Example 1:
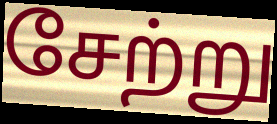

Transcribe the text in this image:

சேற்று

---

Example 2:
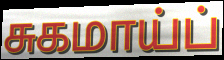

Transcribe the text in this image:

சுகமாய்ப்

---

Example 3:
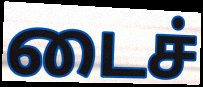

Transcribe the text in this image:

டைச்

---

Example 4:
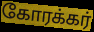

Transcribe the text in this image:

கோரக்கர்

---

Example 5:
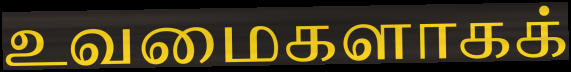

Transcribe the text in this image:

உவமைகளாகக்